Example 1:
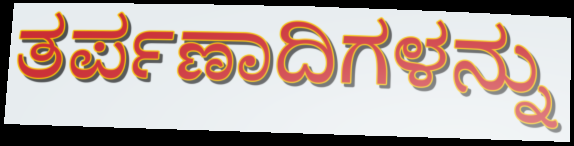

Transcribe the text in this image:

ತರ್ಪಣಾದಿಗಳನ್ನು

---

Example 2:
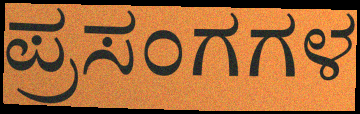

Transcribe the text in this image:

ಪ್ರಸಂಗಗಳ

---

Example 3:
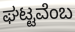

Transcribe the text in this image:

ಘಟ್ಟವೆಂಬ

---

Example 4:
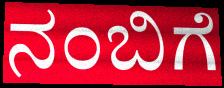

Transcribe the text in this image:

ನಂಬಿಗೆ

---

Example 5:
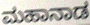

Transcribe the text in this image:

ಮಹಾನಾಡ